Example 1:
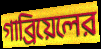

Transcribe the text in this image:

গাব্রিয়েলের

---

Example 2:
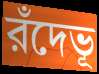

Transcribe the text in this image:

রঁদেভূ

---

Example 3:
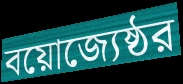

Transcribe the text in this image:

বয়োজ্যেষ্ঠর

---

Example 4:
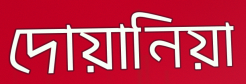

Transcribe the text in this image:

দোয়ানিয়া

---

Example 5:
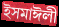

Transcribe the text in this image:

ইসমাঈলী